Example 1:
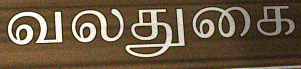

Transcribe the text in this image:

வலதுகை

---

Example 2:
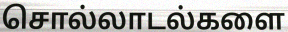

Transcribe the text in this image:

சொல்லாடல்களை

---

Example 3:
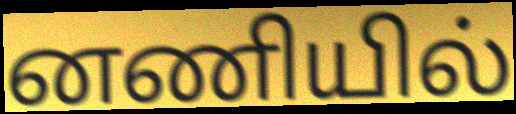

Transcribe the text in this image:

னணியில்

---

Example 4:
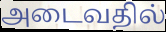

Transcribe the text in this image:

அடைவதில்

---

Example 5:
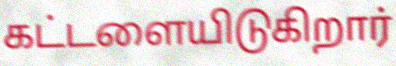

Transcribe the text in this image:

கட்டளையிடுகிறார்